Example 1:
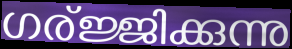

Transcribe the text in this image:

ഗര്ജ്ജിക്കുന്നു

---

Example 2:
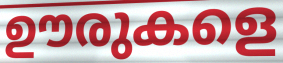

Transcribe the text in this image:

ഊരുകളെ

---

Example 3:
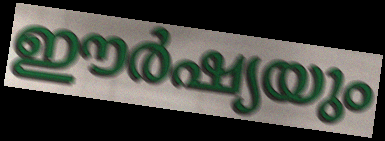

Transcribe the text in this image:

ഈർഷ്യയും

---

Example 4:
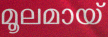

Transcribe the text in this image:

മൂലമായ്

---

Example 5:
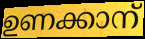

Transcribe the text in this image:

ഉണക്കാന്